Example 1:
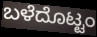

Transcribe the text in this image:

ಬಳೆದೊಟ್ಟಂ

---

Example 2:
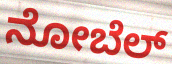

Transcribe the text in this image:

ನೋಬೆಲ್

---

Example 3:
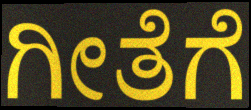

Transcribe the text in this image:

ಗೀತೆಗೆ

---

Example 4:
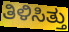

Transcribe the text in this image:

ತಿಳಿಸಿತ್ತು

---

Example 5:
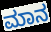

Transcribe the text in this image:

ಮಾನ